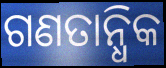
ଗଣତାନ୍ଧିକ